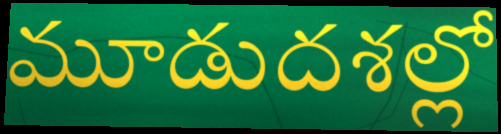
మూడుదశల్లో